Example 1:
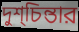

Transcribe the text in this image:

দুশ্‌চিন্তার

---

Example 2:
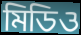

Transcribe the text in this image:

মিডিও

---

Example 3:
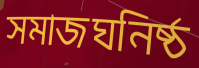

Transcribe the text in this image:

সমাজঘনিষ্ঠ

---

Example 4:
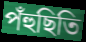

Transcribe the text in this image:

পঁহুছিতি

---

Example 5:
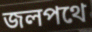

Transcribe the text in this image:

জলপথে